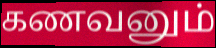
கணவனும்